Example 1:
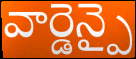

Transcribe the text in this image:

వార్డెన్పై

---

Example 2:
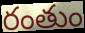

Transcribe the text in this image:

రంతుం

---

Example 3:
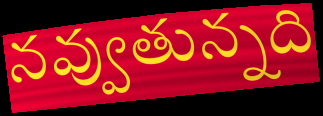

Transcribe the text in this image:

నవ్వుతున్నది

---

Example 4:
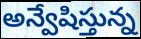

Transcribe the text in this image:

అన్వేషిస్తున్న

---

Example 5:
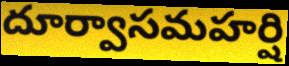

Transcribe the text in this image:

దూర్వాసమహర్షి